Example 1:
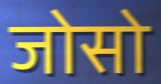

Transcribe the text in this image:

जोसो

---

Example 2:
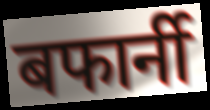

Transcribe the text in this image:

बफार्नी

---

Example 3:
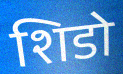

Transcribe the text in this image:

शिडो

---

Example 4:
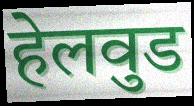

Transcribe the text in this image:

हेलवुड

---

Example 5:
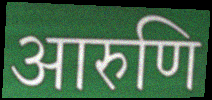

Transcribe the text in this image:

आरुणि